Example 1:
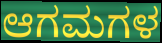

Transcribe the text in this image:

ಆಗಮಗಳ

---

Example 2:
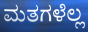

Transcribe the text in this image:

ಮತಗಳೆಲ್ಲ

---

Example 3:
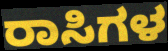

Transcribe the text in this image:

ರಾಸಿಗಳ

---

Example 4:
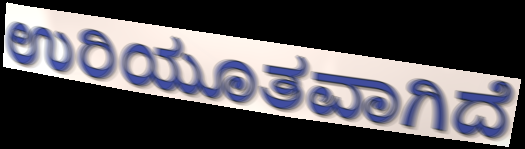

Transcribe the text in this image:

ಉರಿಯೂತವಾಗಿದೆ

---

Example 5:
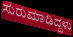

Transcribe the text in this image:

ಸುರುಮಾಡಿದ್ದಳು